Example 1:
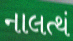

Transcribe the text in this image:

નાલત્થં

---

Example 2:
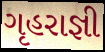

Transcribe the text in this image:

ગૃહરાજ્ઞી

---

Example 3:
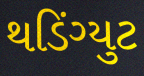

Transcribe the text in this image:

થડિંગ્યુટ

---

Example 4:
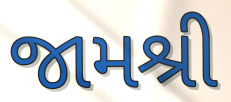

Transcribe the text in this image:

જામશ્રી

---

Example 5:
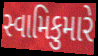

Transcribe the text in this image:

સ્વામિકુમારે